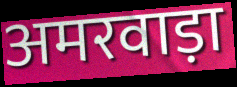
अमरवाड़ा